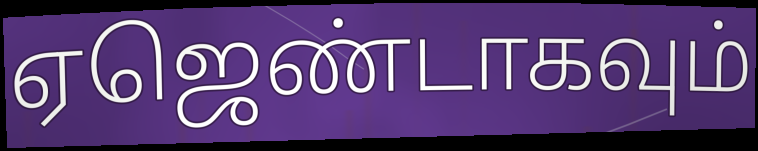
ஏஜெண்டாகவும்